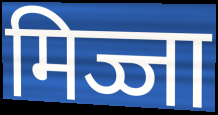
मिज्जा